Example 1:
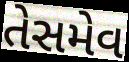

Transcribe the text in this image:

તેસમેવ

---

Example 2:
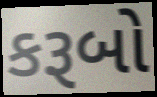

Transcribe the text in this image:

કરૂબો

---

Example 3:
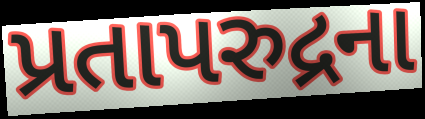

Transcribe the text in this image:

પ્રતાપરુદ્રના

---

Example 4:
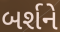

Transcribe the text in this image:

બર્શને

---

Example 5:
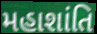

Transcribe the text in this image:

મહાશાંતિ